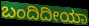
ಬಂದಿದೀಯಾ